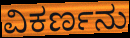
ವಿಕರ್ಣನು